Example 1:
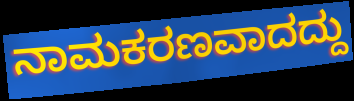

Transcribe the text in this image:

ನಾಮಕರಣವಾದದ್ದು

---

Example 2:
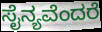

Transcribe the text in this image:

ಸೈನ್ಯವೆಂದರೆ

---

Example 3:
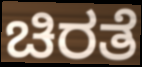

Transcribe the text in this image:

ಚಿರತೆ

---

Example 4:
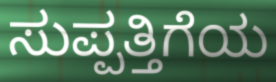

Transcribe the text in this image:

ಸುಪ್ಪತ್ತಿಗೆಯ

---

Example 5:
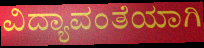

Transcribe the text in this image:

ವಿದ್ಯಾವಂತೆಯಾಗಿ